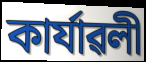
কাৰ্যাৱলী